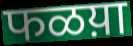
फळय़ा